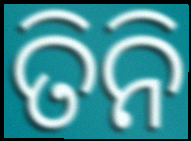
ତିନି